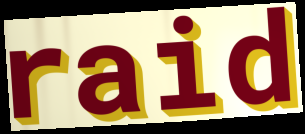
raid